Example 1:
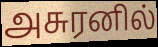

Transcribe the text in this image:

அசுரனில்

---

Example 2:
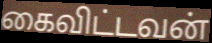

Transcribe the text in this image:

கைவிட்டவன்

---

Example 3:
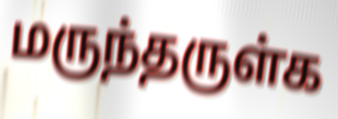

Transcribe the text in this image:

மருந்தருள்க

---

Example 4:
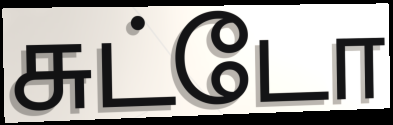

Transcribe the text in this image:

சுட்டோ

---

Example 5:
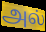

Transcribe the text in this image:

அல்